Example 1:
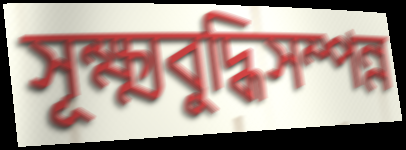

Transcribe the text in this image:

সূক্ষ্মবুদ্ধিসম্পন্ন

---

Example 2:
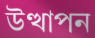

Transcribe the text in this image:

উত্থাপন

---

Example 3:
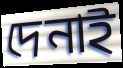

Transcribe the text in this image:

দেনাই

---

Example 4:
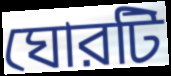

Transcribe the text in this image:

ঘোরটি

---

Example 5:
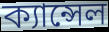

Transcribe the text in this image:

ক্যান্সেল